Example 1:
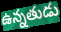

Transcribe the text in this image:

ఉన్నతుడు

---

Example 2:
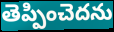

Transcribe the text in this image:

తెప్పించెదను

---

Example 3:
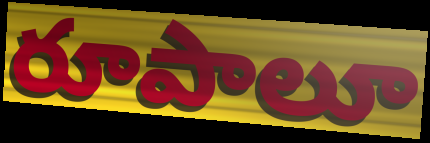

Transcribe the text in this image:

రూపాలూ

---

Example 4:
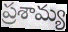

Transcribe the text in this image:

ప్రశామ్య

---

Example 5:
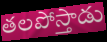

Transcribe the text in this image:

తలపోస్తాడు